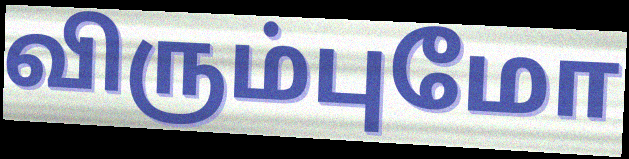
விரும்புமோ